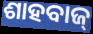
ଶାହବାଜ୍